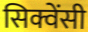
सिक्वेंसी